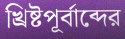
খ্রিষ্টপূর্বাব্দের